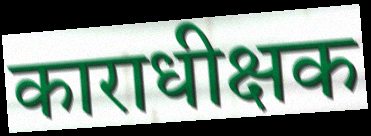
काराधीक्षक